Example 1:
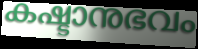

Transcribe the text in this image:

കഷ്ടാനുഭവം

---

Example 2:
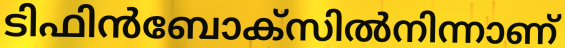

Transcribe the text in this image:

ടിഫിൻബോക്സിൽനിന്നാണ്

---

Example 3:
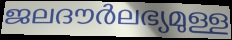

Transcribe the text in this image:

ജലദൗർലഭ്യമുള്ള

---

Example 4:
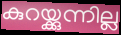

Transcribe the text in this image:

കുറയ്ക്കുന്നില്ല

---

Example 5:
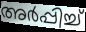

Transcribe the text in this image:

അർപ്പിച്ച്